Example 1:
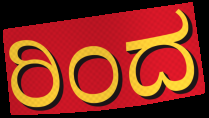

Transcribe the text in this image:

ರಿಂದ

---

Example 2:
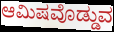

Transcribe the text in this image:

ಆಮಿಷವೊಡ್ಡುವ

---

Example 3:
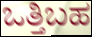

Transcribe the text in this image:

ಒತ್ತಿಬಹ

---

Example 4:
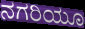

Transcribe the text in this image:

ನಗರಿಯೂ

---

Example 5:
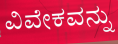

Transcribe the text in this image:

ವಿವೇಕವನ್ನು